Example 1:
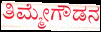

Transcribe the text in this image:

ತಿಮ್ಮೇಗೌಡನ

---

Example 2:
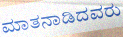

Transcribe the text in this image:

ಮಾತನಾಡಿದವರು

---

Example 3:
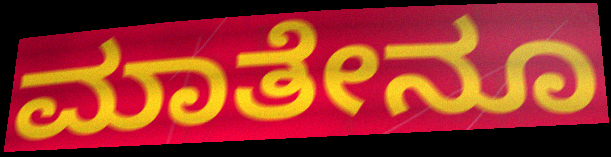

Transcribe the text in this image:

ಮಾತೇನೂ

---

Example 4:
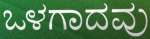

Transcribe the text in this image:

ಒಳಗಾದವು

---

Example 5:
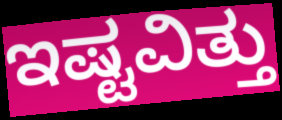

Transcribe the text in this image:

ಇಷ್ಟವಿತ್ತು